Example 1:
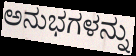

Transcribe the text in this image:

ಅನುಭಗಳನ್ನು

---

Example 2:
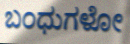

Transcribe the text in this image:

ಬಂಧುಗಳೋ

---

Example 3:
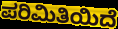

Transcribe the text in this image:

ಪರಿಮಿತಿಯಿದೆ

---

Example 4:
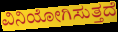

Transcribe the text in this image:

ವಿನಿಯೋಗಿಸುತ್ತದೆ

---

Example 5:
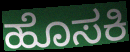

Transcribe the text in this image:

ಹೊಸಕಿ